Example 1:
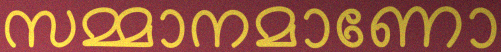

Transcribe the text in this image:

സമ്മാനമാണോ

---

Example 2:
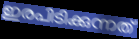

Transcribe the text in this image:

ഇരപിടിക്കുന്നത്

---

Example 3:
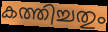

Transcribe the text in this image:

കത്തിച്ചതും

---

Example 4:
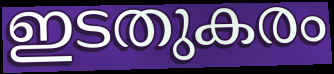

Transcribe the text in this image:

ഇടതുകരം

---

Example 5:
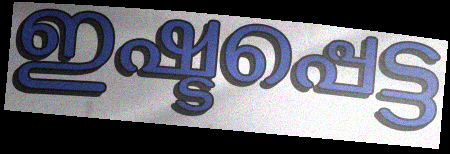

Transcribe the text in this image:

ഇഷ്ടപ്പെട്ട